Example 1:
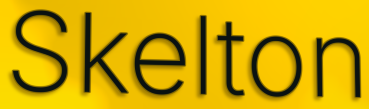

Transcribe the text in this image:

Skelton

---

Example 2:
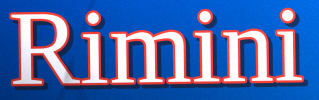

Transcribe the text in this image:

Rimini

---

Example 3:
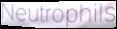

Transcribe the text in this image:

Neutrophils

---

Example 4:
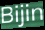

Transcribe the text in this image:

Bijin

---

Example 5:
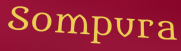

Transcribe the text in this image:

Sompura